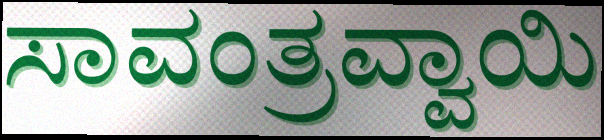
ಸಾವಂತ್ರವ್ವಾಯಿ